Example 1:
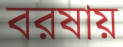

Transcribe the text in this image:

বরষায়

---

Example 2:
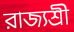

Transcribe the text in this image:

রাজ্যশ্রী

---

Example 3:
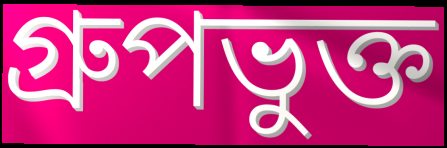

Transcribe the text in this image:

গ্রুপভুক্ত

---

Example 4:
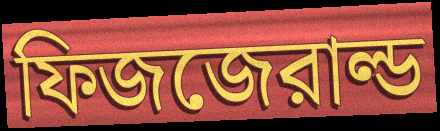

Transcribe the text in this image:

ফিজজেরাল্ড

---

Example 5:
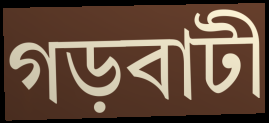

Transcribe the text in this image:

গড়বাটী